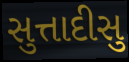
સુત્તાદીસુ